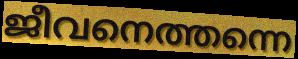
ജീവനെത്തന്നെ